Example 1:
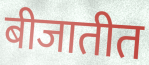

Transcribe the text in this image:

बीजातीत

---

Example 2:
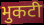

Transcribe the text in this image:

भुकटी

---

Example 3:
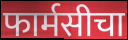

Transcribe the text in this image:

फार्मसीचा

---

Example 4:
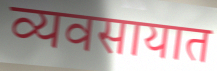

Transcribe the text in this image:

व्यवसायात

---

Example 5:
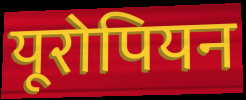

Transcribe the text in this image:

यूरोपियन